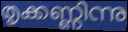
തൃക്കണ്ണിന്നു